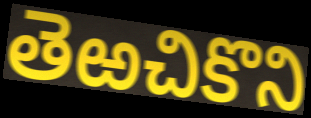
తెఱచికొని